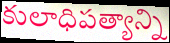
కులాధిపత్యాన్ని